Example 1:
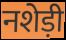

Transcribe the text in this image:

नशेड़ी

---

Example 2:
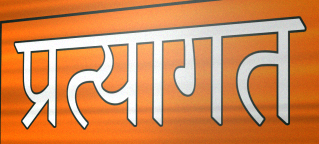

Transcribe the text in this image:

प्रत्यागत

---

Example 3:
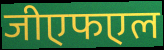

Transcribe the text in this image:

जीएफएल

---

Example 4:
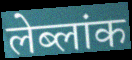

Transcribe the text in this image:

लेब्लांक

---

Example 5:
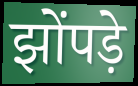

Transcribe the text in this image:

झोंपड़े